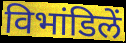
विभांडिलें